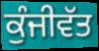
ਕੁੰਜੀਵੱਤ